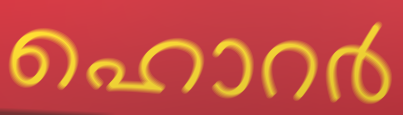
ഹൊറർ